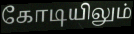
கோடியிலும்